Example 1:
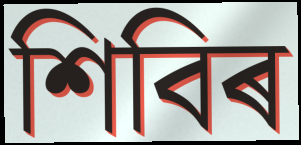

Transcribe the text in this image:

শিবিৰ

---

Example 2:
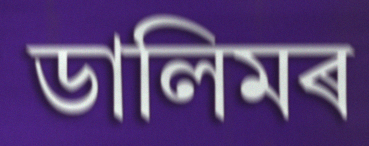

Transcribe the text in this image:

ডালিমৰ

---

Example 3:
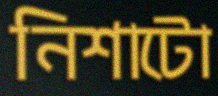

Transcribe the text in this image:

নিশাটো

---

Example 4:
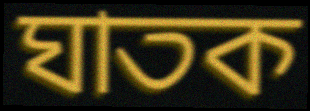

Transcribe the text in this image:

ঘাতক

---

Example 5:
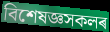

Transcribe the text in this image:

বিশেষজ্ঞসকলৰ